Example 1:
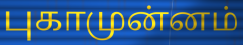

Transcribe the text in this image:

புகாமுன்னம்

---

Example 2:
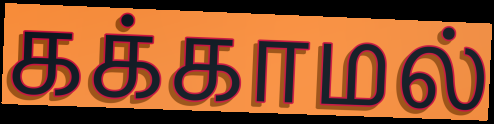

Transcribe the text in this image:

கக்காமல்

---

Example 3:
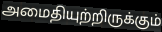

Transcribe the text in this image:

அமைதியுற்றிருக்கும்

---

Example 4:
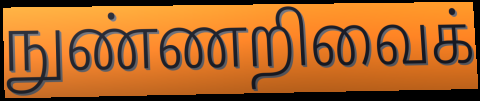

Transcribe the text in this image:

நுண்ணறிவைக்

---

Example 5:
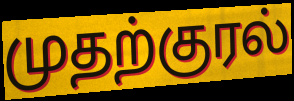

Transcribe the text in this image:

முதற்குரல்